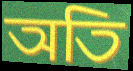
অতি